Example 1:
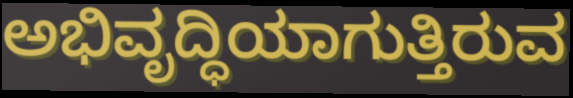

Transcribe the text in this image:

ಅಭಿವೃದ್ಧಿಯಾಗುತ್ತಿರುವ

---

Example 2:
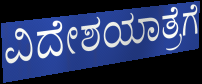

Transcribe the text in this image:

ವಿದೇಶಯಾತ್ರೆಗೆ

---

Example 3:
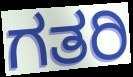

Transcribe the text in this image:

ಗತರಿ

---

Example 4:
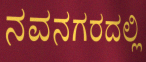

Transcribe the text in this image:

ನವನಗರದಲ್ಲಿ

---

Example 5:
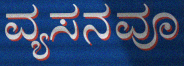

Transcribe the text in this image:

ವ್ಯಸನವೂ